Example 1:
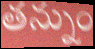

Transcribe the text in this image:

తన్నుం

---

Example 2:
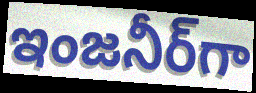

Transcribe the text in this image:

ఇంజనీర్‌గా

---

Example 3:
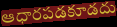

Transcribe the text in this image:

ఆధారపడకూడదు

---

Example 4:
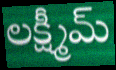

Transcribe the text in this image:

లక్ష్మీమ్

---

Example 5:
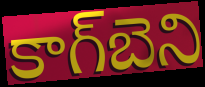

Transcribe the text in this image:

కాగ్‌బెని